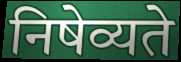
निषेव्यते